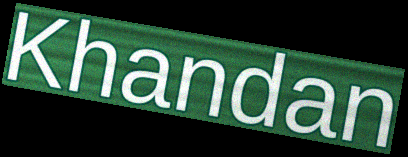
Khandan